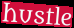
hustle